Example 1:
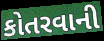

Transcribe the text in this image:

કોતરવાની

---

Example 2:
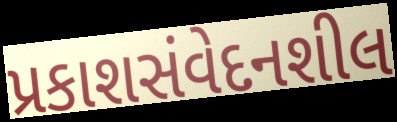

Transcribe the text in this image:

પ્રકાશસંવેદનશીલ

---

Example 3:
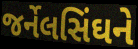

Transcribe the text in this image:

જર્નેલસિંઘને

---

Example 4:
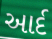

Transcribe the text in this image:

આર્દ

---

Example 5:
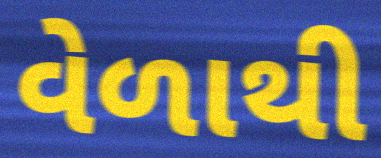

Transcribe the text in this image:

વેળાથી